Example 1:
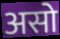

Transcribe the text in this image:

असो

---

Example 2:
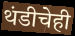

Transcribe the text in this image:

थंडीचेही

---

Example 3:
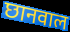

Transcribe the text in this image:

छानवाल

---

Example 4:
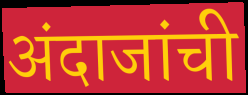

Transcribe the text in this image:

अंदाजांची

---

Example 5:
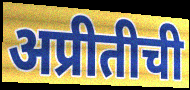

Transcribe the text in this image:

अप्रीतीची